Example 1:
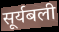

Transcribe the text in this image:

सूर्यबली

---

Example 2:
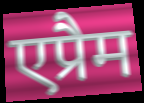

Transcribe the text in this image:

एप्रैम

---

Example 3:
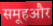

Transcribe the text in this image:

समूहऔर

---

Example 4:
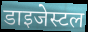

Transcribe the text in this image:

डाइजेस्टल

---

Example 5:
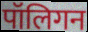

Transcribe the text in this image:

पॉलिगन